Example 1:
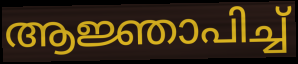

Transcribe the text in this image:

ആജ്ഞാപിച്ച്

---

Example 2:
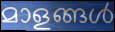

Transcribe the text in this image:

മാളങ്ങൾ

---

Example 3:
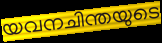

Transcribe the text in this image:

യവനചിന്തയുടെ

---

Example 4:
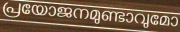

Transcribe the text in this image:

പ്രയോജനമുണ്ടാവുമോ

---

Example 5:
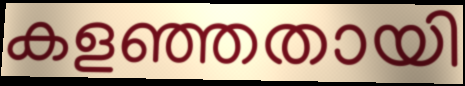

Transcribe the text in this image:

കളഞ്ഞതായി